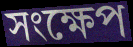
সংক্ষেপ